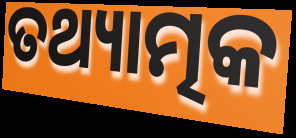
ତଥ୍ୟାତ୍ମକ